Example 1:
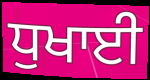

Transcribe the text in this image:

ਧੁਖਾਈ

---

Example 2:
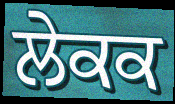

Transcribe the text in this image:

ਲੇਕਕ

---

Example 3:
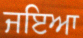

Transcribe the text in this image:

ਜਇਆ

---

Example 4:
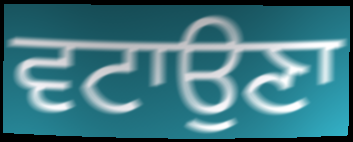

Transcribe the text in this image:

ਵਟਾਉਣਾ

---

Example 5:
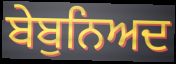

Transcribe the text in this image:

ਬੇਬੁਨਿਅਦ